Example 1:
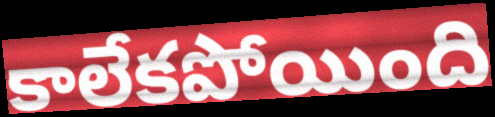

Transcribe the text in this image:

కాలేకపోయింది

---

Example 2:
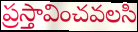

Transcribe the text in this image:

ప్రస్తావించవలసి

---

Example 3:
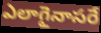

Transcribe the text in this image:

ఎలాగైనాసరే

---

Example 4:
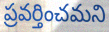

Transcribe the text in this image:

ప్రవర్తించమని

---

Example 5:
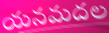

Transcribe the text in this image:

యనమదల